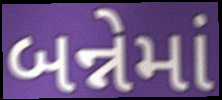
બન્નેમાં